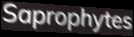
Saprophytes